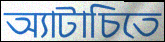
অ্যাটাচিতে